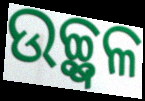
ଉଚ୍ଛ୍ଵଳ